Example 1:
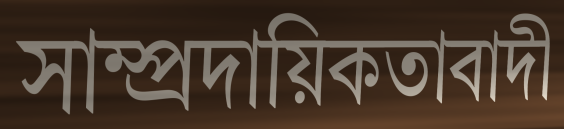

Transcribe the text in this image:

সাম্প্ৰদায়িকতাবাদী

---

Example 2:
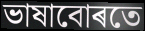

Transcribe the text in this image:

ভাষাবোৰতে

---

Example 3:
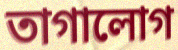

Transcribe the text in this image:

তাগালোগ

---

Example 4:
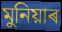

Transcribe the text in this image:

মুনিয়াৰ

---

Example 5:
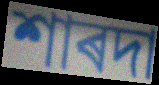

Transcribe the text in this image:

শাৰদা